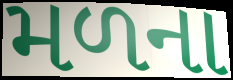
મળના